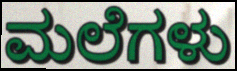
ಮಲೆಗಳು